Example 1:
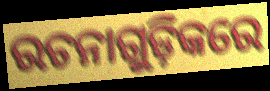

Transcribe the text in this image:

ରଚନାଗୁଡ଼ିକରେ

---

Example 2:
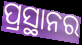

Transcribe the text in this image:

ପ୍ରସ୍ଥାନର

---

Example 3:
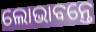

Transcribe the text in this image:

ଲୋଭାବନ୍ତେ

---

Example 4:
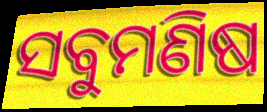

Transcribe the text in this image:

ସବୁମଣିଷ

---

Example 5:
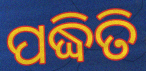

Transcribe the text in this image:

ପଦ୍ଧିତି